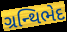
ગ્રન્થિભેદ